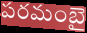
పరమంబై